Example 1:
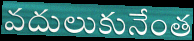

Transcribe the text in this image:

వదులుకునేంత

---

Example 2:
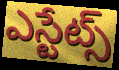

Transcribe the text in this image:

ఎస్టేట్స్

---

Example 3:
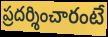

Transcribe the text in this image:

ప్రదర్శించారంటే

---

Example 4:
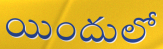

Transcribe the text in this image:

యిందులో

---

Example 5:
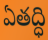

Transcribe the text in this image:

ఏతద్ధి